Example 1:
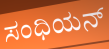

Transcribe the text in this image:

ಸಂಧಿಯನ್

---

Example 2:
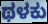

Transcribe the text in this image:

ಥಳಕು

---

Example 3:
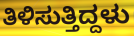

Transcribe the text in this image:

ತಿಳಿಸುತ್ತಿದ್ದಳು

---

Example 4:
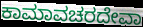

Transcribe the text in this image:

ಕಾಮಾವಚರದೇವಾ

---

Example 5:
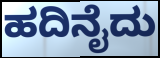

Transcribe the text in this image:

ಹದಿನೈದು